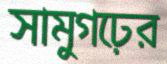
সামুগঢ়ের